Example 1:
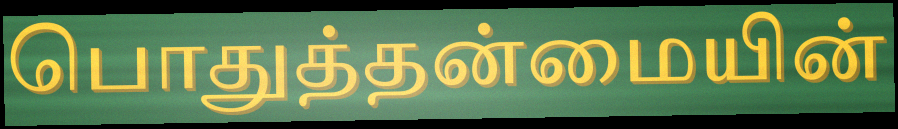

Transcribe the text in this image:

பொதுத்தன்மையின்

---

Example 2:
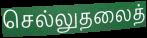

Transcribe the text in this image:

செல்லுதலைத்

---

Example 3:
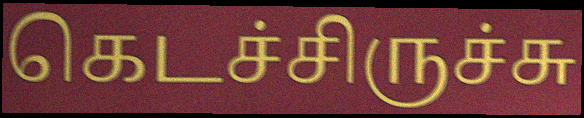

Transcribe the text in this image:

கெடச்சிருச்சு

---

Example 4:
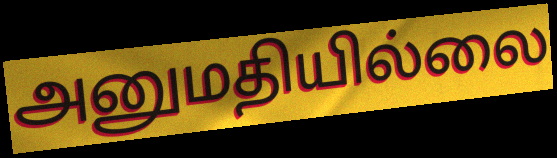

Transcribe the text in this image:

அனுமதியில்லை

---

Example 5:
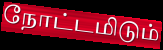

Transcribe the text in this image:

நோட்டமிடும்